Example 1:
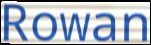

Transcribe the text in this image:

Rowan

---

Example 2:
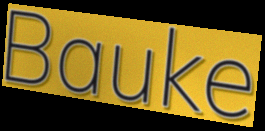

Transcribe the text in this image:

Bauke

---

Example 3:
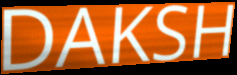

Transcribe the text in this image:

DAKSH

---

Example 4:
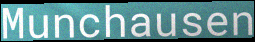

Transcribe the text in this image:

Munchausen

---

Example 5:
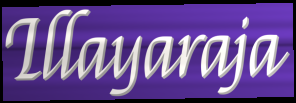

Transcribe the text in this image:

Illayaraja